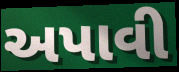
અપાવી